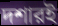
দশারই